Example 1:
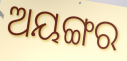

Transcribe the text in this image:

ଅୟଙ୍ଗର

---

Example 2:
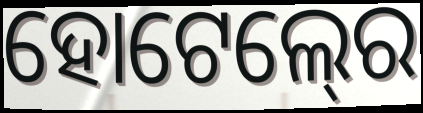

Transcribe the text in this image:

ହୋଟେଲ୍‍ରେ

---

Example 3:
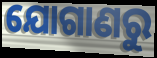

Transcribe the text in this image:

ଯୋଗାଣରୁ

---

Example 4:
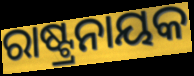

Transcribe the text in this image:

ରାଷ୍ଟ୍ରନାୟକ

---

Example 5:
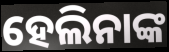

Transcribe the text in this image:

ହେଲିନାଙ୍କ